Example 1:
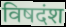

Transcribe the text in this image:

विषदंश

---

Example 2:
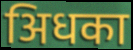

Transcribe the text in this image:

अिधका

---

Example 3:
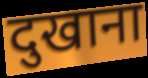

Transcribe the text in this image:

दुखाना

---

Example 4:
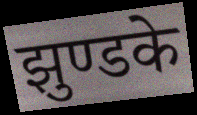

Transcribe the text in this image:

झुण्डके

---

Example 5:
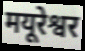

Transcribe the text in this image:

मयूरेश्वर